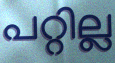
പറ്റില്ല